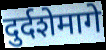
दुर्दशेमागे